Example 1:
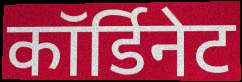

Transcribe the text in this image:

कॉर्डिनेट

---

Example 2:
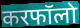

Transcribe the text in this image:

करफॉलो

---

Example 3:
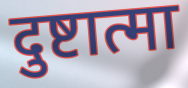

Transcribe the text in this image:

दुष्टात्मा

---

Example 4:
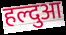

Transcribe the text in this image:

हल्दुआ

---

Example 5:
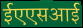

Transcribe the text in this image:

ईएएसआई